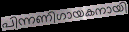
പിന്നണിഗായകനായി